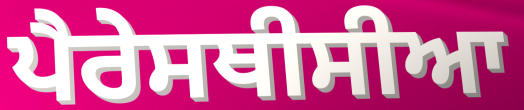
ਪੈਰੇਸਥੀਸੀਆ